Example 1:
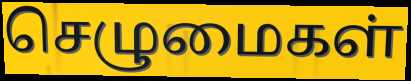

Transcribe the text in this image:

செழுமைகள்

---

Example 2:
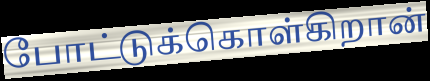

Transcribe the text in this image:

போட்டுக்கொள்கிறான்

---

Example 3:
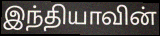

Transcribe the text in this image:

இந்தியாவின்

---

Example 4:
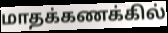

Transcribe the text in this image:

மாதக்கணக்கில்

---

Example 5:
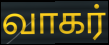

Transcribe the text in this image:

வாகர்